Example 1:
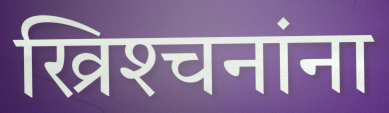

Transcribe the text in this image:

ख्रिश्‍चनांना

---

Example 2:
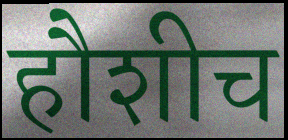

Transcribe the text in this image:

हौशीच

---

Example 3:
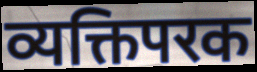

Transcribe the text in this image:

व्यक्तिपरक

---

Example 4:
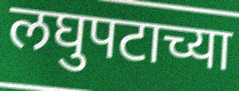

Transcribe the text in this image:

लघुपटाच्या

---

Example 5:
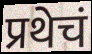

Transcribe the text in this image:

प्रथेचं